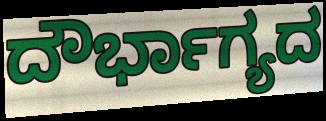
ದೌರ್ಭಾಗ್ಯದ